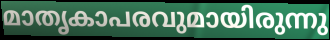
മാതൃകാപരവുമായിരുന്നു